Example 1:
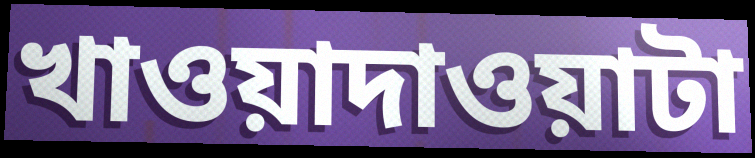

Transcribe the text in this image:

খাওয়াদাওয়াটা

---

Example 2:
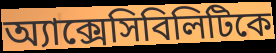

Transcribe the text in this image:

অ্যাক্সেসিবিলিটিকে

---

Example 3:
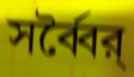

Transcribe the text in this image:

সর্ব্বৈর্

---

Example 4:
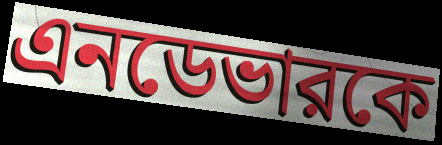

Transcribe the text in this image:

এনডেভারকে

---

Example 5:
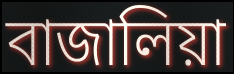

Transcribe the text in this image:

বাজালিয়া